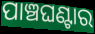
ପାଞ୍ଚଘଣ୍ଟାର